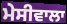
ਮੇਸੀਵਾਲਾ